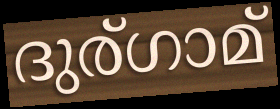
ദുര്ഗാമ്